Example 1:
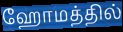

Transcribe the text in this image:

ஹோமத்தில்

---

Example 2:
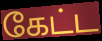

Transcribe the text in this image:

கேட்ட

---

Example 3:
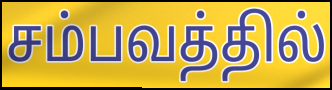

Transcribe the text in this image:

சம்பவத்தில்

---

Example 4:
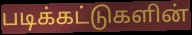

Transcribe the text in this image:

படிக்கட்டுகளின்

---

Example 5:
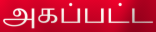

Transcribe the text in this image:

அகப்பட்ட